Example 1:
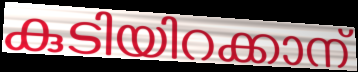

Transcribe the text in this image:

കുടിയിറക്കാന്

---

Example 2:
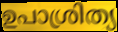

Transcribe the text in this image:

ഉപാശ്രിത്യ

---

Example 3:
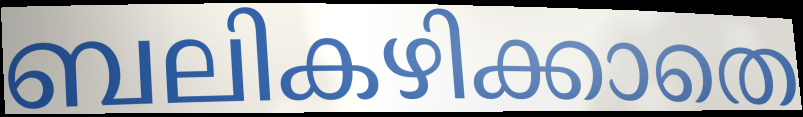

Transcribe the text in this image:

ബലികഴിക്കാതെ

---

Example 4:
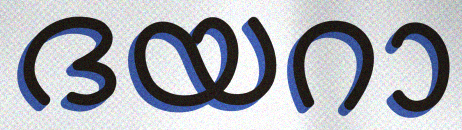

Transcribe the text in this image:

ദയറാ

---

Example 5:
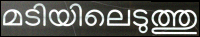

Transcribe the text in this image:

മടിയിലെടുത്തു